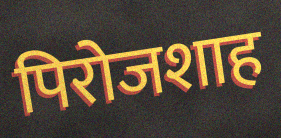
पिरोजशाह